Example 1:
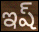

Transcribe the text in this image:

ఇష్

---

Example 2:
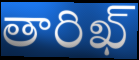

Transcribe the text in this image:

తారిఖ్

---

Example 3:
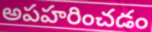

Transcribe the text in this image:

అపహరించడం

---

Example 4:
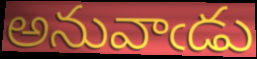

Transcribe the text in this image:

అనువాఁడు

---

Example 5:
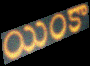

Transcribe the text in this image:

యింకా